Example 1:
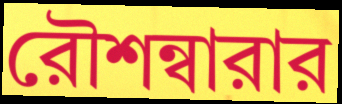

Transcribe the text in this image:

রৌশন্বারার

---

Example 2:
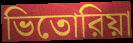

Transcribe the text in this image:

ভিতোরিয়া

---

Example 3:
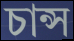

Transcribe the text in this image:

চান্স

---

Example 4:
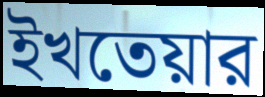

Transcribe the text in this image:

ইখতেয়ার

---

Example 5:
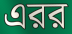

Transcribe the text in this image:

এরর